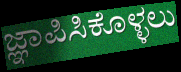
ಜ್ಞಾಪಿಸಿಕೊಳ್ಳಲು